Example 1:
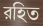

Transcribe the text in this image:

রহিত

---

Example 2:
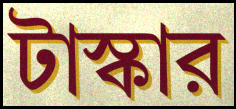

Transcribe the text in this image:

টাস্কার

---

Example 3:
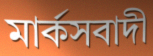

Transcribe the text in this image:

মার্কসবাদী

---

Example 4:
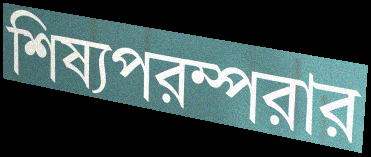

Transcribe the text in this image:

শিষ্যপরম্পরার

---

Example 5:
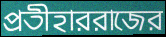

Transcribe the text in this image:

প্রতীহাররাজের